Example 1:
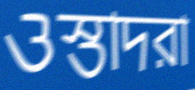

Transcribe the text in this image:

ওস্তাদরা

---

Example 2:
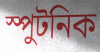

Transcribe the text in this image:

স্পুটনিক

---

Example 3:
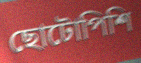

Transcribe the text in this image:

ছোটোপিশি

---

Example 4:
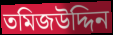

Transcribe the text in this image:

তমিজউদ্দিন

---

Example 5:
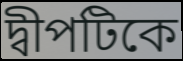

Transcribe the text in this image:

দ্বীপটিকে